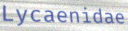
Lycaenidae